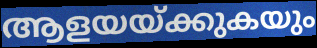
ആളയയ്ക്കുകയും